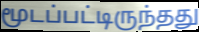
மூடப்பட்டிருந்தது